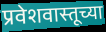
प्रवेशवास्तूच्या